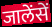
जालेंसें